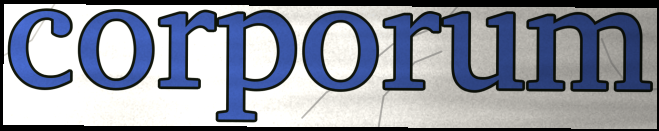
corporum